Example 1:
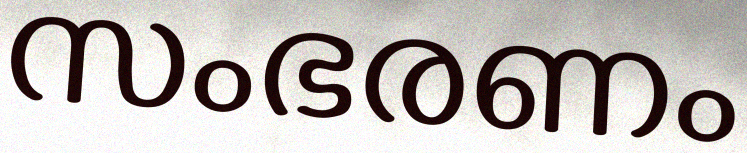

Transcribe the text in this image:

സംഭരണം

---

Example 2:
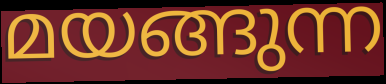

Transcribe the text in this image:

മയങ്ങുന്ന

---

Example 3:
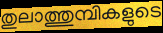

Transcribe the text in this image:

തുലാത്തുമ്പികളുടെ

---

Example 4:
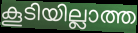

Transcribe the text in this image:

കൂടിയില്ലാത്ത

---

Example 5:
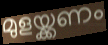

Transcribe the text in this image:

മുളയ്ക്കണം